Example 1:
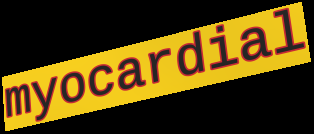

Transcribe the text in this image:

myocardial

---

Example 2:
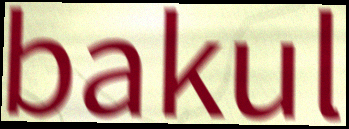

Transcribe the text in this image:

bakul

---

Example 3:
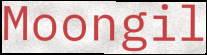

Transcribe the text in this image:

Moongil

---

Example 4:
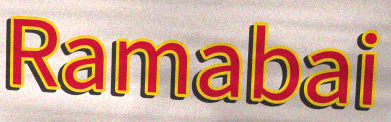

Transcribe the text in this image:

Ramabai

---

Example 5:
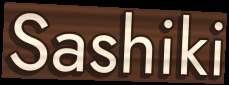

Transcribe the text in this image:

Sashiki